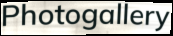
Photogallery